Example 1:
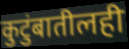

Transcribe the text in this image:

कुटुंबातीलही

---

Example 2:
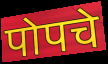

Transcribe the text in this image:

पोपचे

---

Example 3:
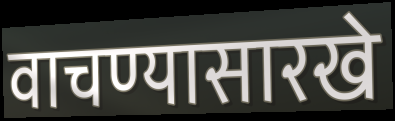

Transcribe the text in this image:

वाचण्यासारखे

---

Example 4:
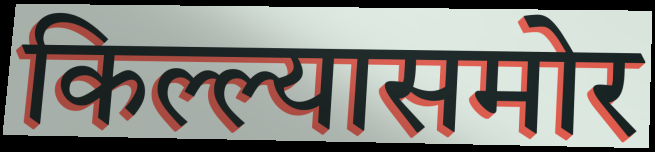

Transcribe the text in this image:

किल्ल्यासमोर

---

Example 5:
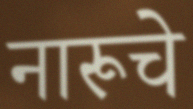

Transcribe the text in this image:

नारूचे